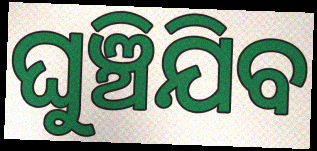
ଘୁଞ୍ଚିଯିବ